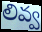
లివ్వ